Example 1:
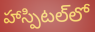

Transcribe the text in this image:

హాస్పిటల్‌లో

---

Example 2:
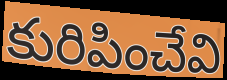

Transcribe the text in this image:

కురిపించేవి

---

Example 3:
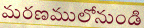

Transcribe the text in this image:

మరణములోనుండి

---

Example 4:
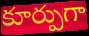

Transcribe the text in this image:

కూర్పుగా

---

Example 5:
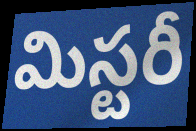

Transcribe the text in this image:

మిస్టరీ